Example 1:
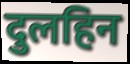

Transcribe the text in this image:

दुलहिन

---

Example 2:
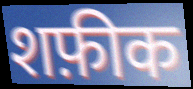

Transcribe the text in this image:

शफ़ीक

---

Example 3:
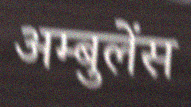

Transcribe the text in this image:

अम्बुलेंस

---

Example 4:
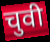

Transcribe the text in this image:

चुवी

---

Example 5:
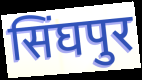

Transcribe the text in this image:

सिंघपुर